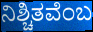
ನಿಶ್ಚಿತವೆಂಬ